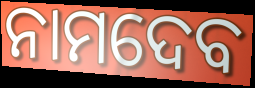
ନାମଦେବ